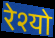
रेश्यो